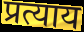
प्रत्याय